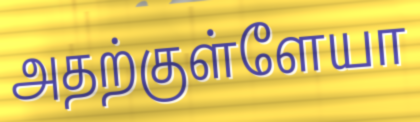
அதற்குள்ளேயா